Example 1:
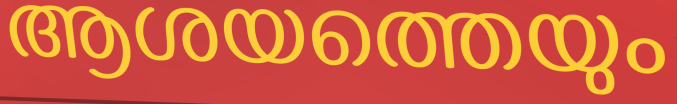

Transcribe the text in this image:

ആശയത്തെയും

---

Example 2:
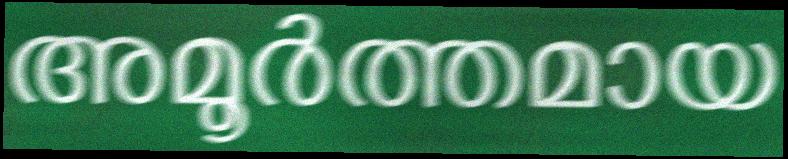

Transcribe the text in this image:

അമൂർത്തമായ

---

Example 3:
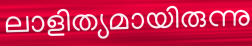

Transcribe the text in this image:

ലാളിത്യമായിരുന്നു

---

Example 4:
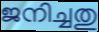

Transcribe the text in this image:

ജനിച്ചതു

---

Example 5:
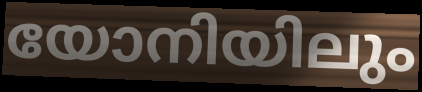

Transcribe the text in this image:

യോനിയിലും